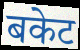
बकेट